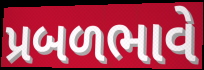
પ્રબળભાવે